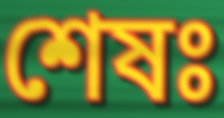
শেষঃ